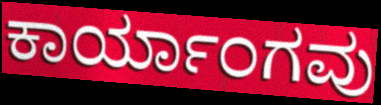
ಕಾರ್ಯಾಂಗವು